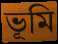
ভূমি